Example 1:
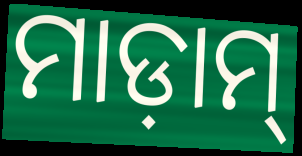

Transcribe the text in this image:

ମାଡ଼ାମ୍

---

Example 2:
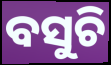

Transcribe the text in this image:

ବସୁଚି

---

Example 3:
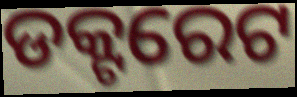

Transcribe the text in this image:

ଡକ୍ଟରେଟ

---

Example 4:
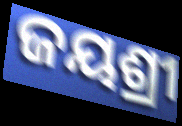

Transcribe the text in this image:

ଜୟଶ୍ରୀ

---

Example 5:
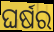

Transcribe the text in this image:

ଘର୍ଷର